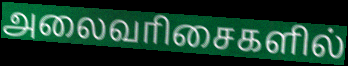
அலைவரிசைகளில்